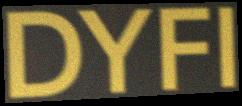
DYFI